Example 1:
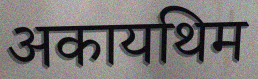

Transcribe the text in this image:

अकायथिम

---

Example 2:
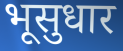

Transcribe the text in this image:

भूसुधार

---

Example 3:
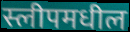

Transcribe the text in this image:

स्लीपमधील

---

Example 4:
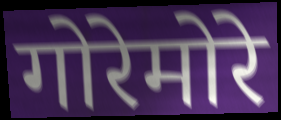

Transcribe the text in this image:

गोरेमोरे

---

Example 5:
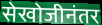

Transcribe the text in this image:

सेखोजीनंतर